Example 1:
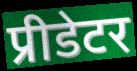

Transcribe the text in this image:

प्रीडेटर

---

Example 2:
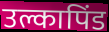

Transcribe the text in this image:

उल्कापिंड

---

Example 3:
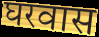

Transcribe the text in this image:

घरवास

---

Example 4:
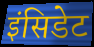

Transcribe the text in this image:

इंसिडेट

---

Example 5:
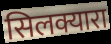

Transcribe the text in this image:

सिलक्यारा